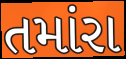
તમાંરા